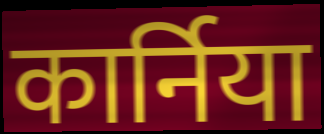
कार्निया